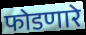
फोडणारे